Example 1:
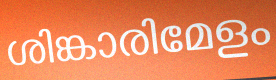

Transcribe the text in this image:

ശിങ്കാരിമേളം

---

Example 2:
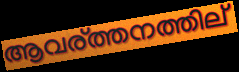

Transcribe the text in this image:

ആവര്ത്തനത്തില്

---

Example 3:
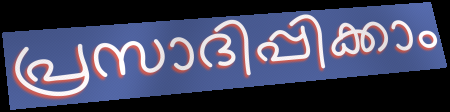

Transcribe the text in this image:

പ്രസാദിപ്പിക്കാം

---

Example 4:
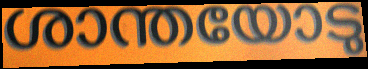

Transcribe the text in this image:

ശാന്തയോടു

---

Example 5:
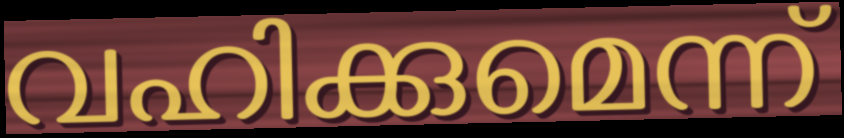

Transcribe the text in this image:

വഹിക്കുമെന്ന്